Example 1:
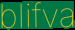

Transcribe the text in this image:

blifva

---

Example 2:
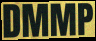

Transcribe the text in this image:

DMMP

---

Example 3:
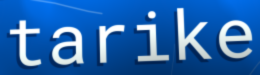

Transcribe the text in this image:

tarike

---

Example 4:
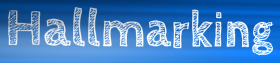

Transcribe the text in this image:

Hallmarking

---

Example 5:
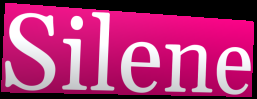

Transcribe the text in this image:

Silene